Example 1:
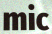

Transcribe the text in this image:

mic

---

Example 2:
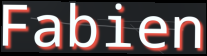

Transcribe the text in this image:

Fabien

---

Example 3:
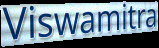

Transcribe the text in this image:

Viswamitra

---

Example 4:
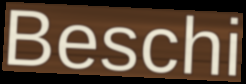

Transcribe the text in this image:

Beschi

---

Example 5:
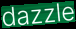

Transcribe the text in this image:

dazzle